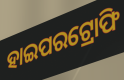
ହାଇପରଟ୍ରୋଫି